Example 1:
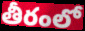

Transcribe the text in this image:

తీరంలో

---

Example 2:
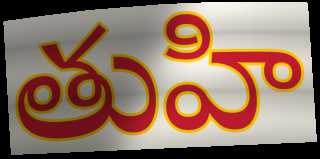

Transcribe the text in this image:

తుహి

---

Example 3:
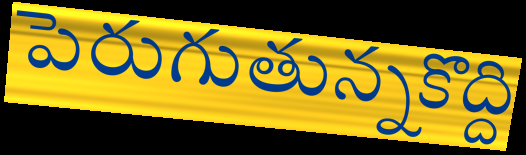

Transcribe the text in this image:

పెరుగుతున్నకొద్ది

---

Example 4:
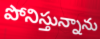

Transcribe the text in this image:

పోనిస్తున్నాను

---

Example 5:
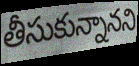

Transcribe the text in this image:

తీసుకున్నానని